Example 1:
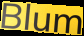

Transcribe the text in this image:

Blum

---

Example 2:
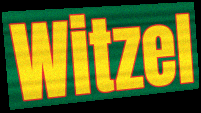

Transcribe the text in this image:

Witzel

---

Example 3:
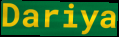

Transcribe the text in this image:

Dariya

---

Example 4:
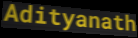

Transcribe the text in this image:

Adityanath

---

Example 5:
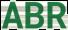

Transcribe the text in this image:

ABR